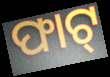
ଫାଟ୍